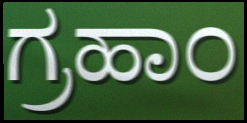
ಗ್ರಹಾಂ